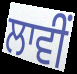
ਲਾਵੀਂ